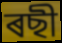
ৰছী